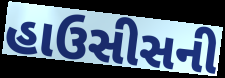
હાઉસીસની